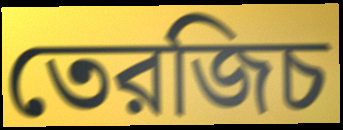
তেরজিচ